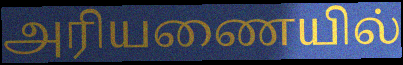
அரியணையில்